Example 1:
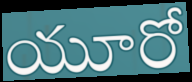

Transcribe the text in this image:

యూరో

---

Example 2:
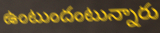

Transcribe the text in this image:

ఉంటుందంటున్నారు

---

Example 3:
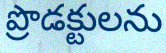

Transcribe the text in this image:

ప్రొడక్టులను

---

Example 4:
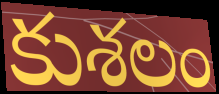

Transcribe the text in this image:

కుశలం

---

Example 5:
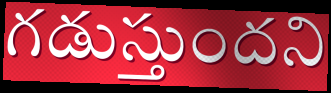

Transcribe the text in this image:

గడుస్తుందని